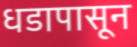
धडापासून